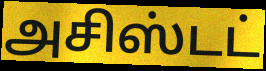
அசிஸ்டட்